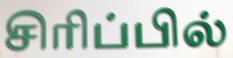
சிரிப்பில்